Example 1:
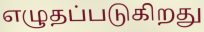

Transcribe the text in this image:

எழுதப்படுகிறது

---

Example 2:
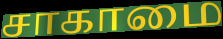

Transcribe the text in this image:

சாகாமை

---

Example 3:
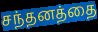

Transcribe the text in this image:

சந்தனத்தை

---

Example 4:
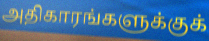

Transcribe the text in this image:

அதிகாரங்களுக்குக்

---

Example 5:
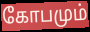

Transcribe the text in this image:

கோபமும்